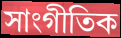
সাংগীতিক